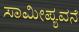
ಸಾಮೀಪ್ಯವನೆ